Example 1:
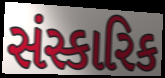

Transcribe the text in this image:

સંસ્કારિક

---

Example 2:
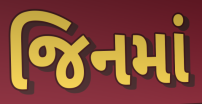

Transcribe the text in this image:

જિનમાં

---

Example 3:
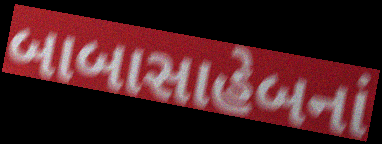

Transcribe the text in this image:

બાબાસાહેબનાં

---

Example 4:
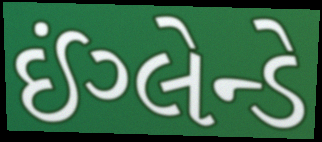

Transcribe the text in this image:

ઈંગ્લેન્ડે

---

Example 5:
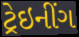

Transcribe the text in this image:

ટ્રેઇનીંગ